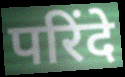
परिंदे